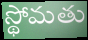
స్థోమతు